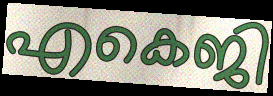
എകെജി